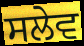
ਸਲੇਵ